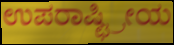
ಉಪರಾಷ್ಟ್ರೀಯ